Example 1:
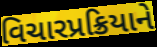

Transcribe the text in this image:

વિચારપ્રક્રિયાને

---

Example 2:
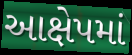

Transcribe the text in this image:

આક્ષેપમાં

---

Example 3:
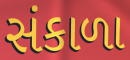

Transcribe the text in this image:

સંકાળા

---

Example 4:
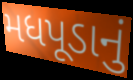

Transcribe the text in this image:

મધપૂડાનું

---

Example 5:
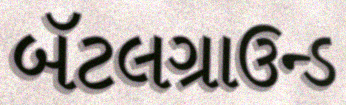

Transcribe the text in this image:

બૅટલગ્રાઉન્ડ